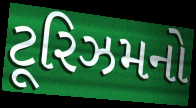
ટૂરિઝમનો